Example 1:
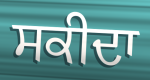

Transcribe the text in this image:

ਸਕੀਦਾ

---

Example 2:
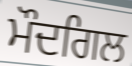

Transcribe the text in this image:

ਮੌਦਗਿਲ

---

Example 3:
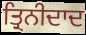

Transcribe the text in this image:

ਤ੍ਰਿਨੀਦਾਦ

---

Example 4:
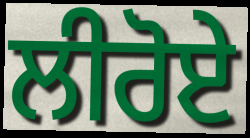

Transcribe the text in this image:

ਲੀਰੋਏ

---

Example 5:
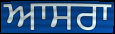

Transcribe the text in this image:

ਆਸਰਾ